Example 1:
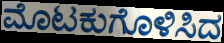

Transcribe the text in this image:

ಮೊಟಕುಗೊಳಿಸಿದ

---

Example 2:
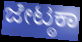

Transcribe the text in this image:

ಜೇಟ್ಠಕಾ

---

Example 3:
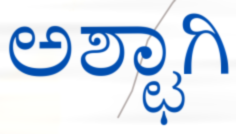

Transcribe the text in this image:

ಅಶ್ಟಾಗಿ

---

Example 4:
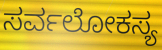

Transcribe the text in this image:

ಸರ್ವಲೋಕಸ್ಯ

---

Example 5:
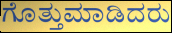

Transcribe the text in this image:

ಗೊತ್ತುಮಾಡಿದರು